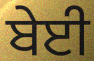
ਬੇਈ